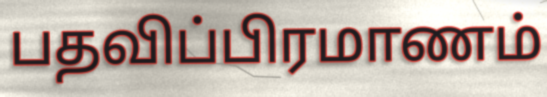
பதவிப்பிரமாணம்